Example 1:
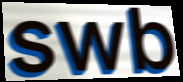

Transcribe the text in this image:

swb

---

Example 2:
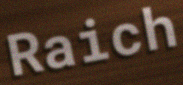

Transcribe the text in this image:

Raich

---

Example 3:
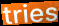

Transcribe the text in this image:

tries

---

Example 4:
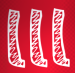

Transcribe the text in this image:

lll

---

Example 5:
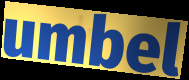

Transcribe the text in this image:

umbel